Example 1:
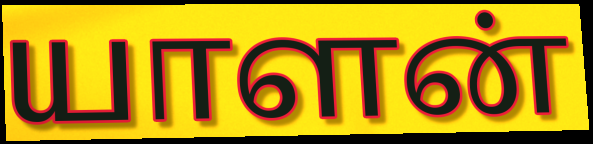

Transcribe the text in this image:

யாளன்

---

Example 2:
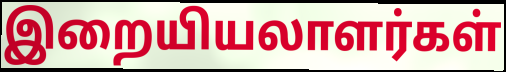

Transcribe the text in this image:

இறையியலாளர்கள்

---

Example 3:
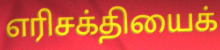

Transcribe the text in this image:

எரிசக்தியைக்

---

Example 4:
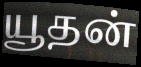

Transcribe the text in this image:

யூதன்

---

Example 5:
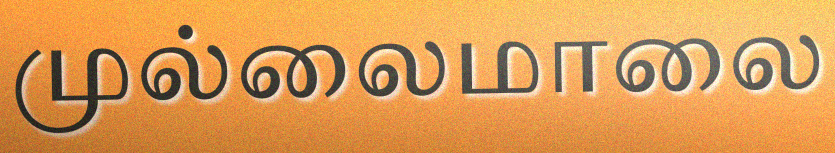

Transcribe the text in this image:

முல்லைமாலை